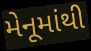
મેનૂમાંથી